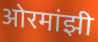
ओरमांझी